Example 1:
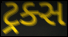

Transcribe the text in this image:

ટ્રક્સ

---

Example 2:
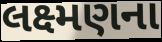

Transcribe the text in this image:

લક્ષ્મણના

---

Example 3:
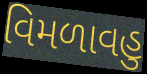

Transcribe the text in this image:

વિમળાવહુ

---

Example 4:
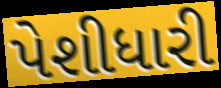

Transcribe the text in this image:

પેશીધારી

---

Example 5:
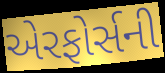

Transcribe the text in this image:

એરફોર્સની